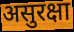
असुरक्षा